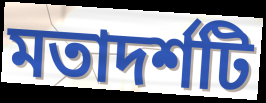
মতাদর্শটি